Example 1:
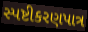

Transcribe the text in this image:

સ્પષ્ટીકરણપાત્ર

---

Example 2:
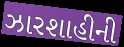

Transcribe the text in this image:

ઝારશાહીની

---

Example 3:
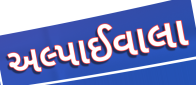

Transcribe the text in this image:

અલ્પાઈવાલા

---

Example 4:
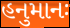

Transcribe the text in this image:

હનુમાનઃ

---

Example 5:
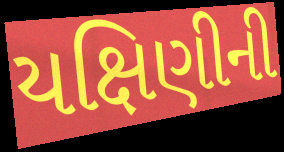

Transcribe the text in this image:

યક્ષિણીની